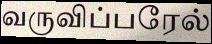
வருவிப்பரேல்